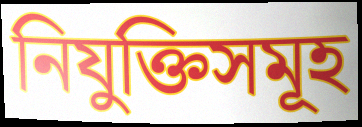
নিযুক্তিসমূহ